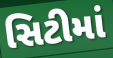
સિટીમાં